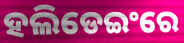
ହଲିଡେଇଂରେ